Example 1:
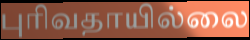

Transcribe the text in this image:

புரிவதாயில்லை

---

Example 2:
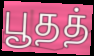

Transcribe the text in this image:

பூதத்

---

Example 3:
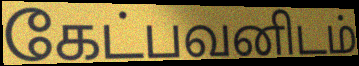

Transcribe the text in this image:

கேட்பவனிடம்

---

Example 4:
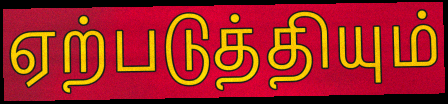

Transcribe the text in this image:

ஏற்படுத்தியும்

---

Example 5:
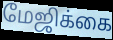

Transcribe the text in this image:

மேஜிக்கை